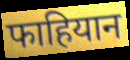
फाहियान